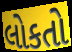
લોકતો